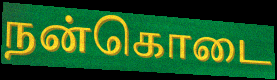
நன்கொடை